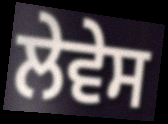
ਲੇਵੇਸ